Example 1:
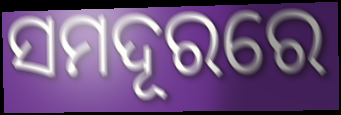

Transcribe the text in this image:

ସମଦୂରରେ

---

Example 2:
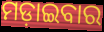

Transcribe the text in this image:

ମଡ଼ାଇବାର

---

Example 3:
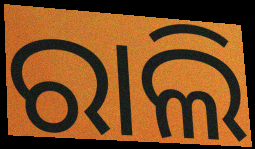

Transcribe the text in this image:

ରାଲି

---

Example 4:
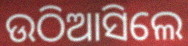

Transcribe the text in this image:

ଉଠିଆସିଲେ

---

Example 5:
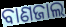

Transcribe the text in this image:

ବାଣଜାଲ